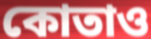
কোতাও